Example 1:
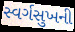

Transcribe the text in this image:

સ્વર્ગસુખની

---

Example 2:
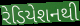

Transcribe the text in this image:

રેડિયેશનથી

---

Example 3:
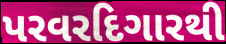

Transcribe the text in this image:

પરવરદિગારથી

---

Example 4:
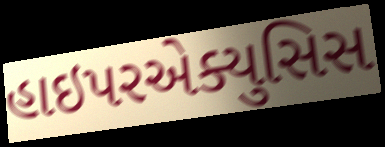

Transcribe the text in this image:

હાઇપરએક્યુસિસ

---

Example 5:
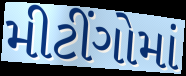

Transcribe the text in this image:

મીટીંગોમાં